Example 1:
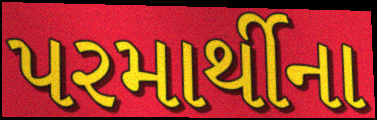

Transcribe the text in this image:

પરમાર્થીના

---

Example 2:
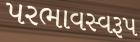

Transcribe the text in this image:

પરભાવસ્વરૂપ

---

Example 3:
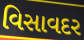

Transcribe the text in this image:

વિસાવદર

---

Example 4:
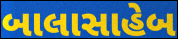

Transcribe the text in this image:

બાલાસાહેબ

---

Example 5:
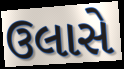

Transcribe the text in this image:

ઉલાસે